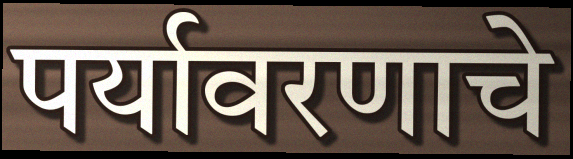
पर्यावरणाचे